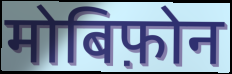
मोबिफ़ोन